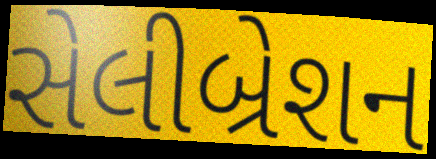
સેલીબ્રેશન